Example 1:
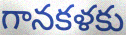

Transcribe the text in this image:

గానకళకు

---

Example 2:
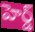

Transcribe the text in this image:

హెర్డ్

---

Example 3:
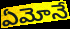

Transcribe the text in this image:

ఏమోనే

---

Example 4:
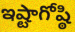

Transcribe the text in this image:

ఇష్టాగోష్ఠి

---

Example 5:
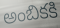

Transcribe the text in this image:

అంబికకి